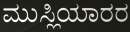
ಮುಸ್ಲಿಯಾರರ